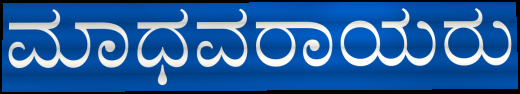
ಮಾಧವರಾಯರು